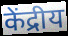
केंद्रीय